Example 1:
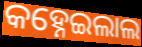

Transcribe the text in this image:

କହ୍ନେଇଲାଲ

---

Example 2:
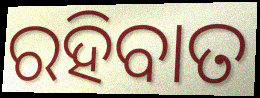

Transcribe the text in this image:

ରହିବାତ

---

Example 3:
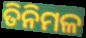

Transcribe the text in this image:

ତିନିମଳ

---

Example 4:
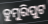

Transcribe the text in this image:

ଡୁମୁରିପୁଟ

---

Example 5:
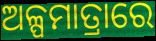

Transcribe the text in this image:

ଅଳ୍ପମାତ୍ରାରେ